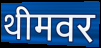
थीमवर